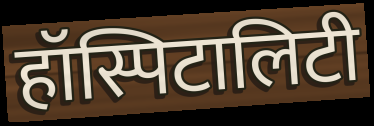
हॉस्पिटालिटी